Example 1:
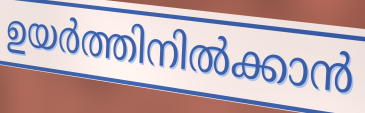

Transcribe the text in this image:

ഉയർത്തിനിൽക്കാൻ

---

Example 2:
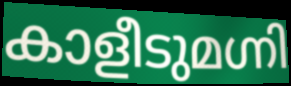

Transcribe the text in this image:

കാളീടുമഗ്നി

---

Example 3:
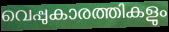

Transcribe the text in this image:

വെപ്പുകാരത്തികളും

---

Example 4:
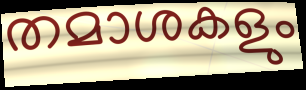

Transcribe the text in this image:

തമാശകളും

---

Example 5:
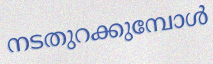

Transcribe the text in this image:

നടതുറക്കുമ്പോൾ